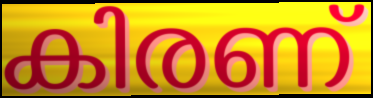
കിരണ്